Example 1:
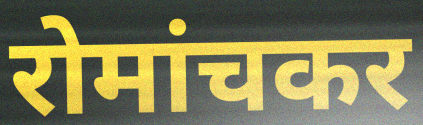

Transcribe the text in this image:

रोमांचकर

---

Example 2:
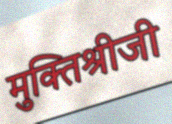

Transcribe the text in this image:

मुक्तिश्रीजी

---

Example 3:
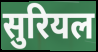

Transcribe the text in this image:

सुरियल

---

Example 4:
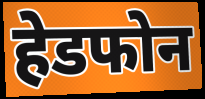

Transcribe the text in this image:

हेडफोन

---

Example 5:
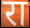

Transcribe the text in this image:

रा